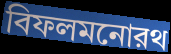
বিফলমনোরথ